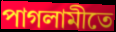
পাগলামীতে